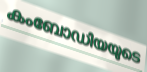
കംബോഡിയയുടെ